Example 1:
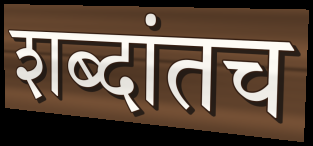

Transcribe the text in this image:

शब्दांतच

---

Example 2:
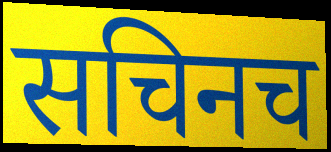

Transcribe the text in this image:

सचिनच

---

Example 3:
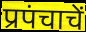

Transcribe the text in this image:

प्रपंचाचें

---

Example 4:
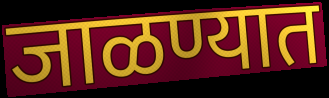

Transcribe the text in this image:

जाळण्यात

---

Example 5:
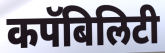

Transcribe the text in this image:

कपॅबिलिटी